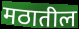
मठातील